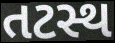
તટસ્થ